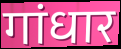
गांधार